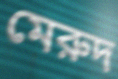
মেরুদ